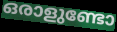
ഒരാളുണ്ടോ